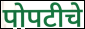
पोपटीचे